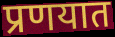
प्रणयात